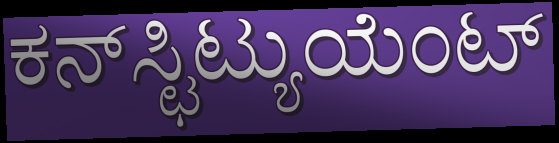
ಕನ್‌ಸ್ಟಿಟ್ಯುಯೆಂಟ್